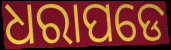
ଧରାପଡେ